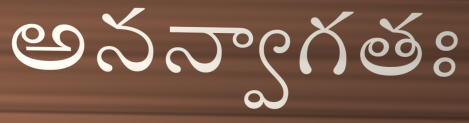
అనన్వాగతః